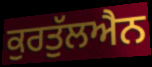
ਕੁਰਤੁੱਲਐਨ